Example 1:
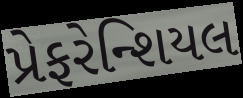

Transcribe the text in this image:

પ્રેફરેન્શિયલ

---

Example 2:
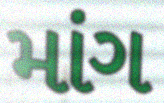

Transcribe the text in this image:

માંગ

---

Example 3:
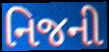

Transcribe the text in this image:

નિજની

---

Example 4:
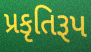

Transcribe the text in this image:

પ્રકૃતિરૂપ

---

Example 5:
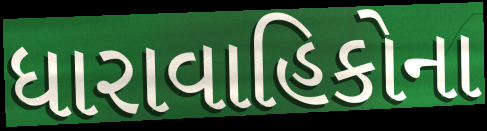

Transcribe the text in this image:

ધારાવાહિકોના